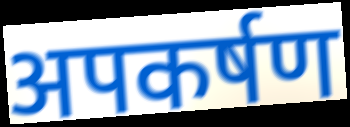
अपकर्षण